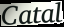
Catal